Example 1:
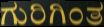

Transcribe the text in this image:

ಗುರಿಗಿಂತ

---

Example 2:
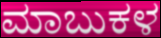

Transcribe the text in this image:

ಮಾಬುಕಳ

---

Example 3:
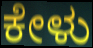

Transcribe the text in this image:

ಕೇಳು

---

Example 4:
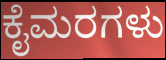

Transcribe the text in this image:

ಕೈಮರಗಳು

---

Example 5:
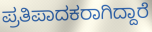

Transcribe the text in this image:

ಪ್ರತಿಪಾದಕರಾಗಿದ್ದಾರೆ